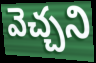
వెచ్చని